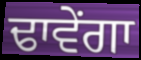
ਢਾਵੇਂਗਾ